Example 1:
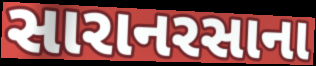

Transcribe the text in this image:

સારાનરસાના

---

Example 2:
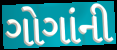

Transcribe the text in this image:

ગોગાંની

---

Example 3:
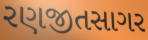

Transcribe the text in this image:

રણજીતસાગર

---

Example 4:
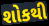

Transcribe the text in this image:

શોકથી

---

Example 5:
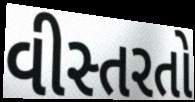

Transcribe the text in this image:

વીસ્તરતો